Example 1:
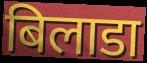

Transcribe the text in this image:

बिलाडा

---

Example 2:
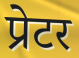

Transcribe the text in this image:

प्रेटर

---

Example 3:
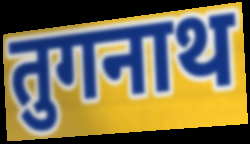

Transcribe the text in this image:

तुगनाथ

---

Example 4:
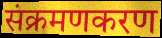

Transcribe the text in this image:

संक्रमणकरण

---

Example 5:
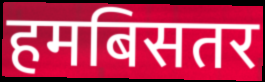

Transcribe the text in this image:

हमबिसतर